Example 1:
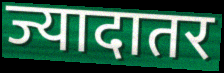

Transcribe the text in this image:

ज्यादातर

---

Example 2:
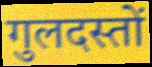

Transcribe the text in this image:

गुलदस्तों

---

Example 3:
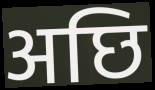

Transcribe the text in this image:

अछि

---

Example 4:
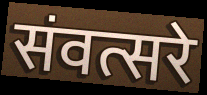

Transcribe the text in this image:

संवत्सरे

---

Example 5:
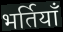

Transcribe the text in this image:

भर्तियाँ